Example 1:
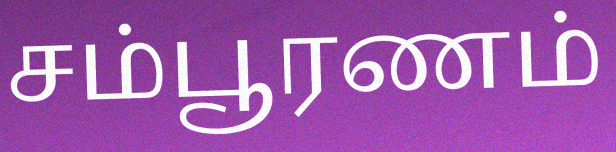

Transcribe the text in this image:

சம்பூரணம்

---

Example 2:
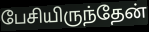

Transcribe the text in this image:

பேசியிருந்தேன்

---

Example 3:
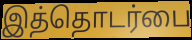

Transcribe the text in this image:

இத்தொடர்பை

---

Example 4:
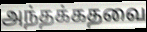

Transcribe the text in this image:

அந்தக்கதவை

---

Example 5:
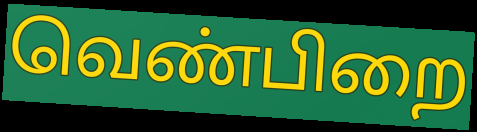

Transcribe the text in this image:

வெண்பிறை